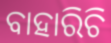
ବାହାରିଚି